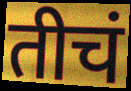
तीचं